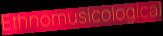
Ethnomusicological